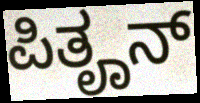
ಪಿತೄನ್